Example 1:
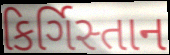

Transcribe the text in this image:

કિર્ગિસ્તાન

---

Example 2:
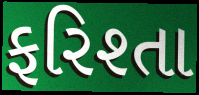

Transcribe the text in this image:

ફરિશ્તા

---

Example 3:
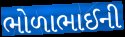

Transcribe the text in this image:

ભોળાભાઈની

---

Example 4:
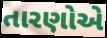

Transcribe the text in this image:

તારણોએ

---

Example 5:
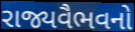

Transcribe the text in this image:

રાજ્યવૈભવનો